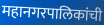
महानगरपालिकांची